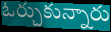
ఓర్చుకున్నారు